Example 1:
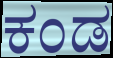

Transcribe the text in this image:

ಕಂಡ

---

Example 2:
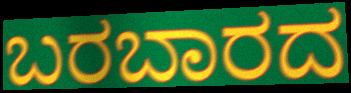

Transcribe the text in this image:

ಬರಬಾರದ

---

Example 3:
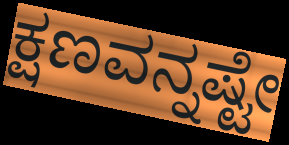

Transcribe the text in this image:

ಕ್ಷಣವನ್ನಷ್ಟೇ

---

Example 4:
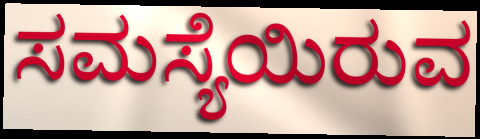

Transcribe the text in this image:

ಸಮಸ್ಯೆಯಿರುವ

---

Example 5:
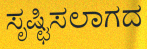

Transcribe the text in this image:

ಸೃಷ್ಟಿಸಲಾಗದ